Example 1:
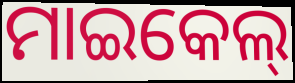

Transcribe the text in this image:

ମାଇକେଲ୍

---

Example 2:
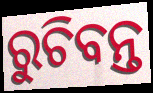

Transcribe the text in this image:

ରୁଚିବନ୍ତ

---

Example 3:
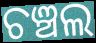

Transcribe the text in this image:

ଚଞ୍ଚଲ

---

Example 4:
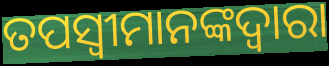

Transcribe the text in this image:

ତପସ୍ୱୀମାନଙ୍କଦ୍ୱାରା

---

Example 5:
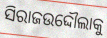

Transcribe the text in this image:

ସିରାଜଉଦ୍ଦୌଲାକୁ